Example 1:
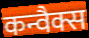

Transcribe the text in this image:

कन्वैक्स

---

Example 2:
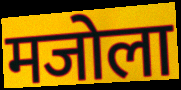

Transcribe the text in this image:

मजोला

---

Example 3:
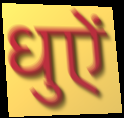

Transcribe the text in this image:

धुऐं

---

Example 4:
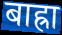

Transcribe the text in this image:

बाह्रा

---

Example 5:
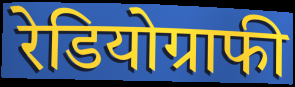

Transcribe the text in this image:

रेडियोग्राफी